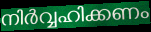
നിർവ്വഹിക്കണം